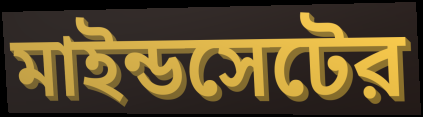
মাইন্ডসেটের